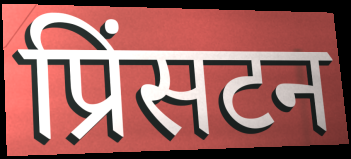
प्रिंसटन